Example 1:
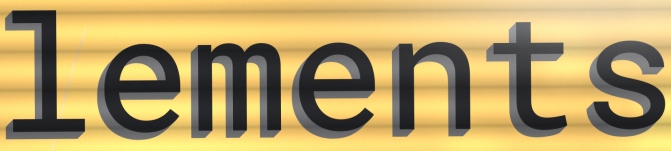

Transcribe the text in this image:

lements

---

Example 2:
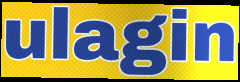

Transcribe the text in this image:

ulagin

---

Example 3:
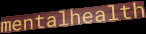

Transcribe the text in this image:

mentalhealth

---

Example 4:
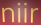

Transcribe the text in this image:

niir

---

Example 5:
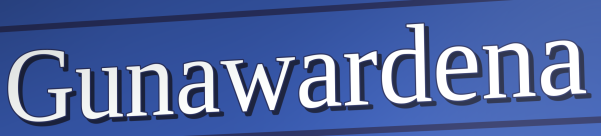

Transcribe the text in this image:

Gunawardena